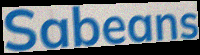
Sabeans